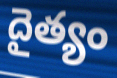
దైత్యం